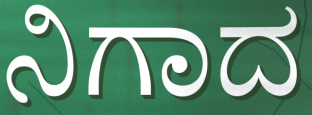
ನಿಗಾದ